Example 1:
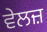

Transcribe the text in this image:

ਵੇਲਜ਼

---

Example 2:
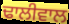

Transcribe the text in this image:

ਢਾਲੀਵਾਲ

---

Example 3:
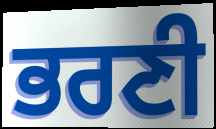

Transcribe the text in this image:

ਭਰਣੀ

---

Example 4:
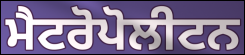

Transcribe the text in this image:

ਮੈਟਰੋਪੋਲੀਟਨ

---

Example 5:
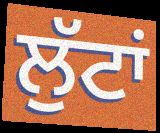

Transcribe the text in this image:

ਲੁੱਟਾਂ